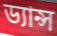
ড্যান্স